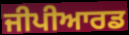
ਜੀਪੀਆਰਡ